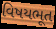
વિષયભૂત